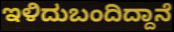
ಇಳಿದುಬಂದಿದ್ದಾನೆ